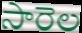
సారెల